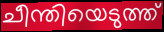
ചീന്തിയെടുത്ത്